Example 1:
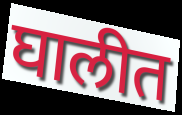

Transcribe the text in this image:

घालीत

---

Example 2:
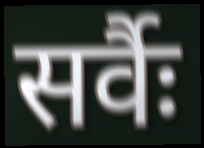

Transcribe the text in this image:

सर्वैः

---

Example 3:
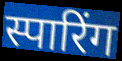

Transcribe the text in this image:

स्पारिंग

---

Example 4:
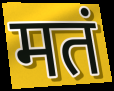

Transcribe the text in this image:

मतं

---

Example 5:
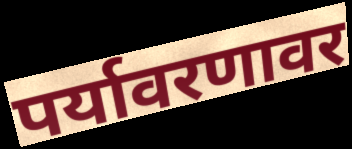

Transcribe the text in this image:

पर्यावरणावर